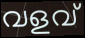
വളവ്